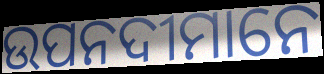
ଉପନଦୀମାନେ